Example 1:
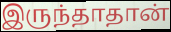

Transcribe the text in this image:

இருந்தாதான்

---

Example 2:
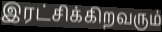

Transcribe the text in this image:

இரட்சிக்கிறவரும்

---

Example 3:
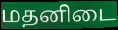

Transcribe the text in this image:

மதனிடை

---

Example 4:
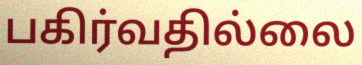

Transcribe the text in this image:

பகிர்வதில்லை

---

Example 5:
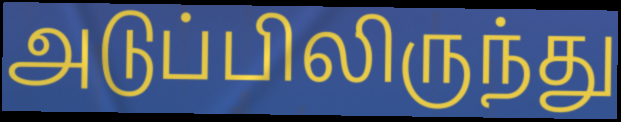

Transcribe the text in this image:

அடுப்பிலிருந்து